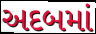
અદબમાં